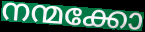
നന്മക്കോ